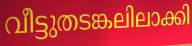
വീട്ടുതടങ്കലിലാക്കി